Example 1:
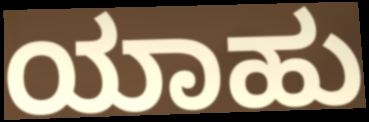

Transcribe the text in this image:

ಯಾಹು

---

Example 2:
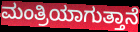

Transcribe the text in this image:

ಮಂತ್ರಿಯಾಗುತ್ತಾನೆ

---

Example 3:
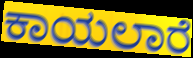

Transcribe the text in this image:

ಕಾಯಲಾರೆ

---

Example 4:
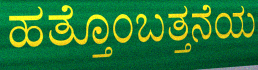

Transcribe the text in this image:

ಹತ್ತೊಂಬತ್ತನೆಯ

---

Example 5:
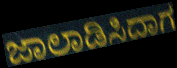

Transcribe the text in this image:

ಜಾಲಾಡಿಸಿದಾಗ